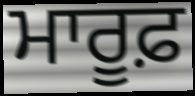
ਮਾਰੂਫ਼